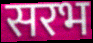
सरभ